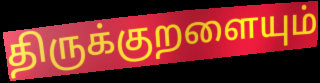
திருக்குறளையும்